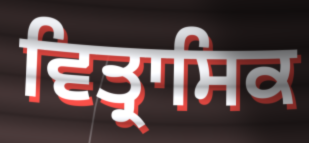
ਵਿਤ੍ਰਾਸਿਕ